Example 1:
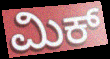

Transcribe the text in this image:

ಮಿಕ್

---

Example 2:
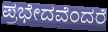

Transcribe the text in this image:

ಪ್ರಭೇದವೆಂದರೆ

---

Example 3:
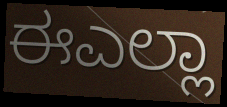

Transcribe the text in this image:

ಈಎಲ್ಲಾ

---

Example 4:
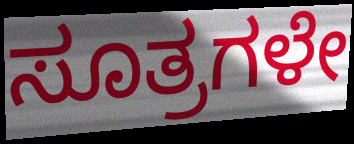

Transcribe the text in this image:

ಸೂತ್ರಗಳೇ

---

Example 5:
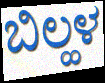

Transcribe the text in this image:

ಬಿಲ್ಹಳ